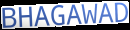
BHAGAWAD